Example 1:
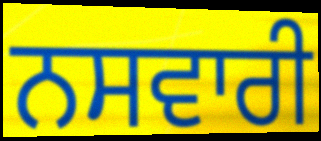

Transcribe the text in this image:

ਨਸਵਾਰੀ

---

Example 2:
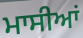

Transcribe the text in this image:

ਮਾਸੀਆਂ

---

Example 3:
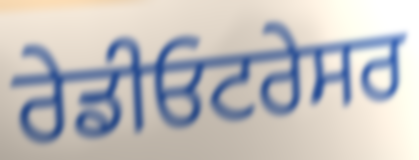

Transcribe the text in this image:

ਰੇਡੀਓਟਰੇਸਰ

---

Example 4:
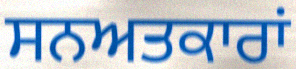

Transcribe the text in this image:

ਸਨਅਤਕਾਰਾਂ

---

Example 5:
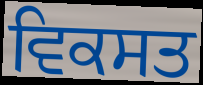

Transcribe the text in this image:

ਵਿਕਸਤ